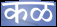
कळ